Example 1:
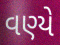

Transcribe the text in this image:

વણ્યે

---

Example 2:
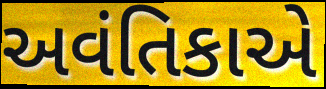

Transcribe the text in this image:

અવંતિકાએ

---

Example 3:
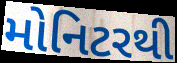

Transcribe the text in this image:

મોનિટરથી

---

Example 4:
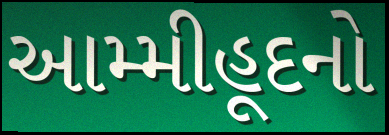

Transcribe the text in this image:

આમ્મીહૂદનો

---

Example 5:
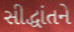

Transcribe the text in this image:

સીદ્ધાંતને